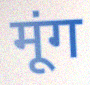
मूंग